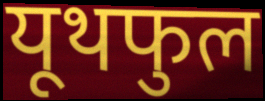
यूथफुल